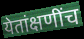
येतांक्षणींच